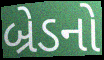
બ્રેડનો